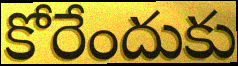
కోరేందుకు